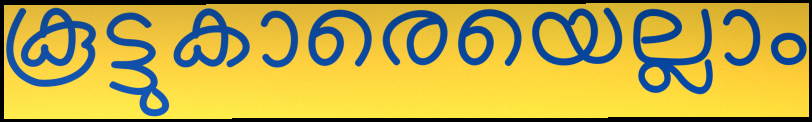
കൂട്ടുകാരെയെല്ലാം